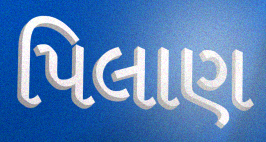
પિલાણ